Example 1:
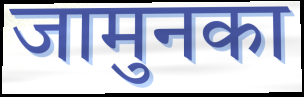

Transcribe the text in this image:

जामुनका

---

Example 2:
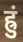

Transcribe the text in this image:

ह्रुं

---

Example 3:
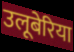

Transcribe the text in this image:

उलूबेरिया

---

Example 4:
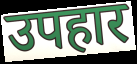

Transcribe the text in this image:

उपहार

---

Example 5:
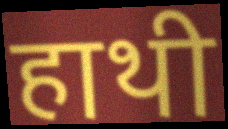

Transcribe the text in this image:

हाथी